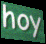
hoy